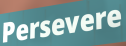
Persevere